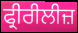
ਫ੍ਰੀਰੀਲੀਜ਼